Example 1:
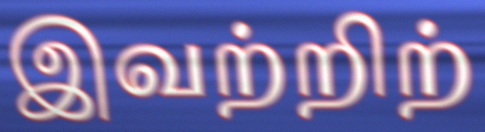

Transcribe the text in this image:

இவற்றிற்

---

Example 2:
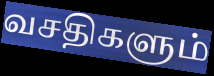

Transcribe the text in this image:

வசதிகளும்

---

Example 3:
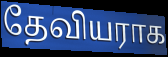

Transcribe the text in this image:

தேவியராக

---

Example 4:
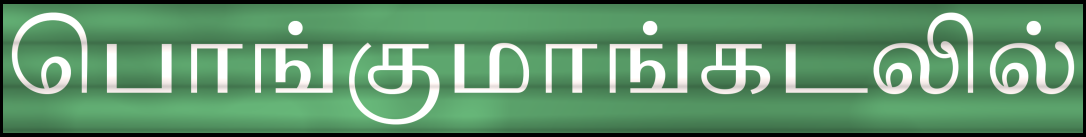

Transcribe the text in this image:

பொங்குமாங்கடலில்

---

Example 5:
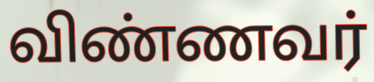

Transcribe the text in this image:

விண்ணவர்